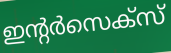
ഇന്റർസെക്സ്